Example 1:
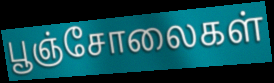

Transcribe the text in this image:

பூஞ்சோலைகள்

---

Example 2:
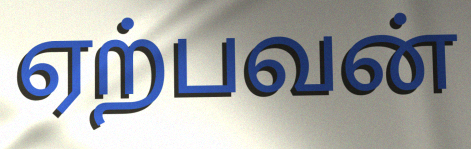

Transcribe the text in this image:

ஏற்பவன்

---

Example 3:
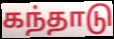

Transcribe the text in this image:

கந்தாடு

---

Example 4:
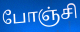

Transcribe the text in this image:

போஞ்சி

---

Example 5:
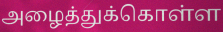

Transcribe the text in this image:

அழைத்துக்கொள்ள